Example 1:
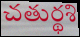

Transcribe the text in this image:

చతుర్థశి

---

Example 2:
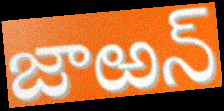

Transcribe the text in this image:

జాఱన్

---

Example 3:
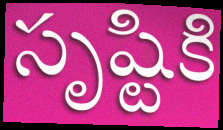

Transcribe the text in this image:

సృష్టికి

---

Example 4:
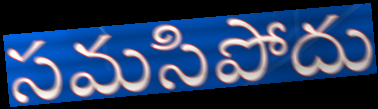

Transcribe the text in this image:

సమసిపోదు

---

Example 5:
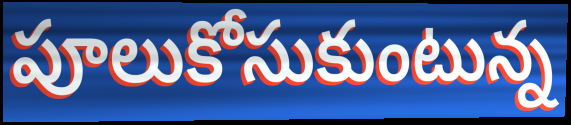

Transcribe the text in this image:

పూలుకోసుకుంటున్న